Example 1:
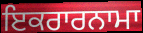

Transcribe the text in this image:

ਇਕਰਾਰਨਾਮਾ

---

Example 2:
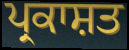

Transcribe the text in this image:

ਪ੍ਰਕਾਸ਼ਤ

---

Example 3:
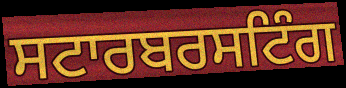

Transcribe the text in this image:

ਸਟਾਰਬਰਸਟਿੰਗ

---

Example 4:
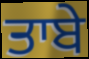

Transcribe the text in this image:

ਤਾਬੇ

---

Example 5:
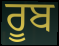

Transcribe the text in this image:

ਰੂਬ